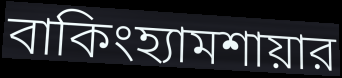
বাকিংহ্যামশায়ার